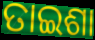
ତାଇଶା